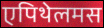
एपिथेलमस